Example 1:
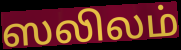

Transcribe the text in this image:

ஸலிலம்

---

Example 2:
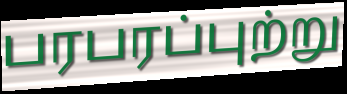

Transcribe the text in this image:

பரபரப்புற்று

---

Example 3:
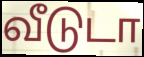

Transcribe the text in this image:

வீடுடா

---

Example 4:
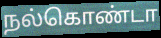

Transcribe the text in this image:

நல்கொண்டா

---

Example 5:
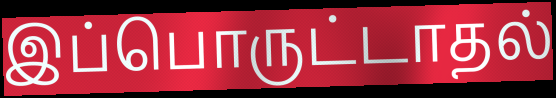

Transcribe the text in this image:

இப்பொருட்டாதல்